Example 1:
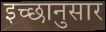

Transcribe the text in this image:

इच्छानुसार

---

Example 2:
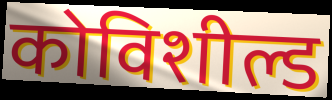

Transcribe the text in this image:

कोविशील्ड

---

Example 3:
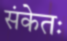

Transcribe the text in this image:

संकेतः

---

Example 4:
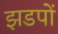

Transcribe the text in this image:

झडपों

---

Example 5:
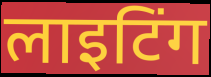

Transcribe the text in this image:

लाइटिंग